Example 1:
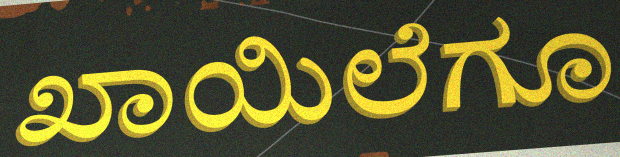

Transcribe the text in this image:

ಖಾಯಿಲೆಗೂ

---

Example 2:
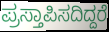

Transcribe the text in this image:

ಪ್ರಸ್ತಾಪಿಸದಿದ್ದರೆ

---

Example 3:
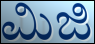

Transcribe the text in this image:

ಮಿಜಿ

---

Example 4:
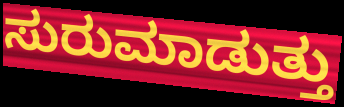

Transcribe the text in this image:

ಸುರುಮಾಡುತ್ತು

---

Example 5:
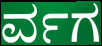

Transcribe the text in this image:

ರ್ವಗ